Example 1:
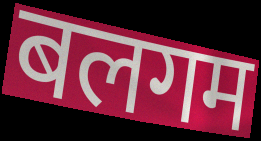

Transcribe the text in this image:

बलगम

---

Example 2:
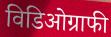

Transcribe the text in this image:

विडिओग्राफी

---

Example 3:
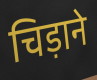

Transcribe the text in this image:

चिड़ाने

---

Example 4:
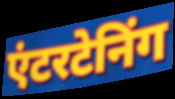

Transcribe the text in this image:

एंटरटेनिंग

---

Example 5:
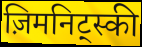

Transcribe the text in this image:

ज़िमनिट्स्की